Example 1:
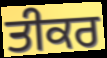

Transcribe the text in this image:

ਤੀਕਰ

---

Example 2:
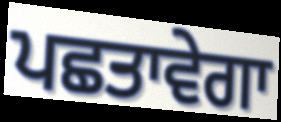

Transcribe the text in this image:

ਪਛਤਾਵੇਗਾ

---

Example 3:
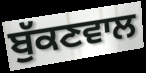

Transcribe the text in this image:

ਬੁੱਕਣਵਾਲ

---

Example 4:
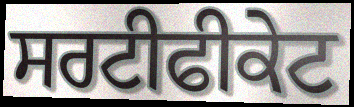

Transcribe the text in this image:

ਸਰਟੀਫੀਕੇਟ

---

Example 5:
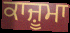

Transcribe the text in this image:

ਕਾਜ਼ੂਮਾ